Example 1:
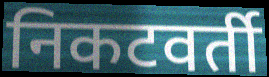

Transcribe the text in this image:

निकटवर्ती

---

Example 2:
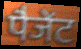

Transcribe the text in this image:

पैजेंट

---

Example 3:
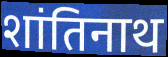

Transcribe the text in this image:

शांतिनाथ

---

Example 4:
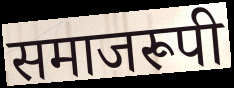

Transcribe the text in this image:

समाजरूपी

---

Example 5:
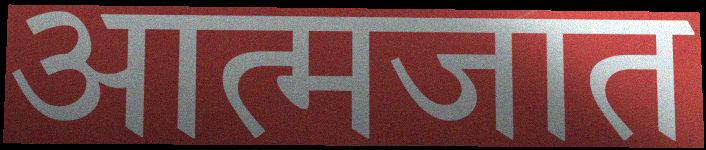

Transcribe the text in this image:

आत्मजात